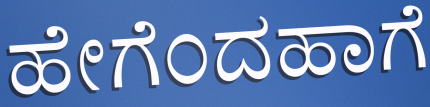
ಹೇಗೆಂದಹಾಗೆ